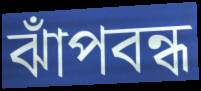
ঝাঁপবন্ধ